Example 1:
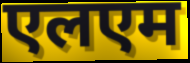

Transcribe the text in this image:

एलएम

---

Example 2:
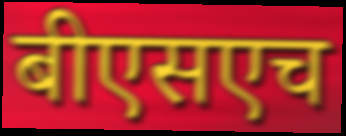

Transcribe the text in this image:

बीएसएच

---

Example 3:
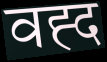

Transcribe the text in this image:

वह्द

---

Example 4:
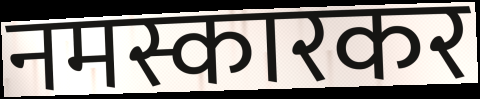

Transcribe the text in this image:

नमस्कारकर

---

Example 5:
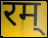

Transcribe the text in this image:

रम्